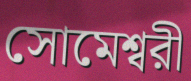
সোমেশ্বরী